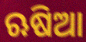
ଋଷିଆ